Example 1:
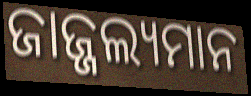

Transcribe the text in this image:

ଜାଜ୍ଜଲ୍ୟମାନ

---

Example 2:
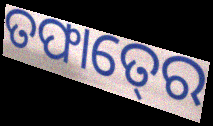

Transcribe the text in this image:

ତଫାତ୍‍ରେ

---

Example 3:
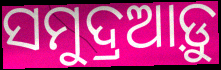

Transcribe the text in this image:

ସମୁଦ୍ରଆଡ଼ୁ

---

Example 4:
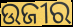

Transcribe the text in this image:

ଉଜୀର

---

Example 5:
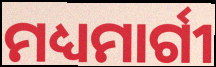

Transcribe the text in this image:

ମଧ୍ୟମାର୍ଗୀ